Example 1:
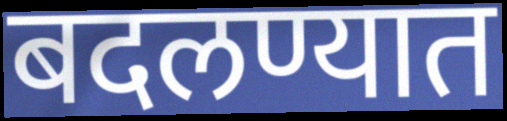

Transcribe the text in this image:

बदलण्यात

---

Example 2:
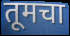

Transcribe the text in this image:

तूमचा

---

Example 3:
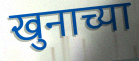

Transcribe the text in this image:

खुनाच्या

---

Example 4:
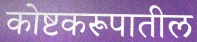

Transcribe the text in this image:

कोष्टकरूपातील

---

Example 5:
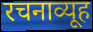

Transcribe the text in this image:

रचनाव्यूह